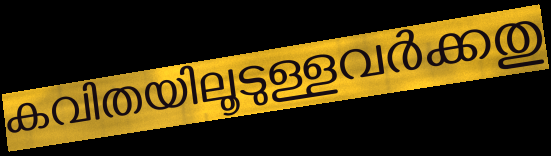
കവിതയിലൂടുള്ളവർക്കതു